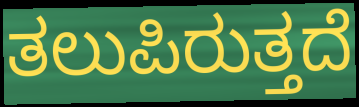
ತಲುಪಿರುತ್ತದೆ